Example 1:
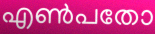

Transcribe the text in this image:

എൺപതോ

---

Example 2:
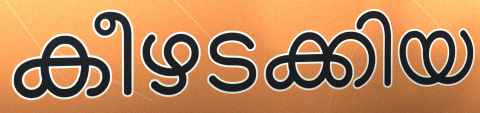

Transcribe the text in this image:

കീഴടക്കിയ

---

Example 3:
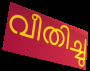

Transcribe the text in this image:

വീതിച്ചു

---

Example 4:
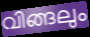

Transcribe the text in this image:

വിങ്ങലും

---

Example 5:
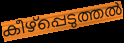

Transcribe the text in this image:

കീഴ്പ്പെടുത്തൽ